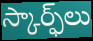
స్కార్ఫ్‌లు